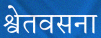
श्वेतवसना